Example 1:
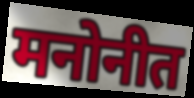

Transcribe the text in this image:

मनोनीत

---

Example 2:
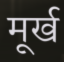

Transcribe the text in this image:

मूर्ख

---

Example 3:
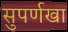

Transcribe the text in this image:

सुपर्णखा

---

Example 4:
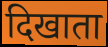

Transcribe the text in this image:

दिखाता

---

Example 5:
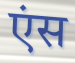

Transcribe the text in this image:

एंस